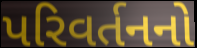
પરિવર્તનનો